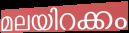
മലയിറക്കം